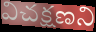
విచక్షణని